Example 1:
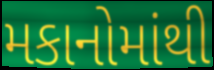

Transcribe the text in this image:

મકાનોમાંથી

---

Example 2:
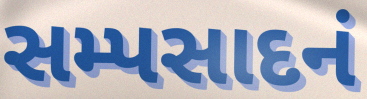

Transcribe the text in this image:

સમ્પસાદનં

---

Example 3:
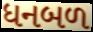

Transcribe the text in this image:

ધનબળ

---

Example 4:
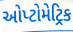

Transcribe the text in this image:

ઓપ્ટોમેટ્રિક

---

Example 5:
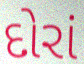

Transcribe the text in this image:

દોરાં